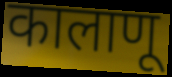
कालाणू